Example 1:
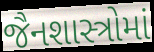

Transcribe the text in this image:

જૈનશાસ્ત્રોમાં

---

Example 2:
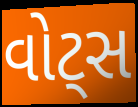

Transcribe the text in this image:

વોટ્સ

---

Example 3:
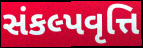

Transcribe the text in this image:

સંકલ્પવૃત્તિ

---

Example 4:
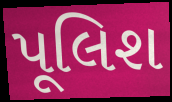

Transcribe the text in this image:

પૂલિશ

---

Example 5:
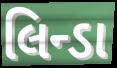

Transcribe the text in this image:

લિન્ડા